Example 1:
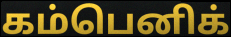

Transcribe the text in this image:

கம்பெனிக்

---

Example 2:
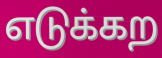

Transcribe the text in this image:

எடுக்கற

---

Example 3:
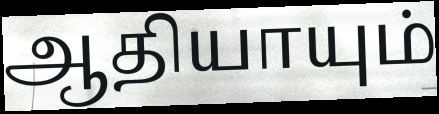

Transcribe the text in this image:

ஆதியாயும்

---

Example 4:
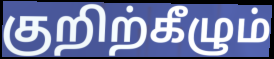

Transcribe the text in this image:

குறிற்கீழும்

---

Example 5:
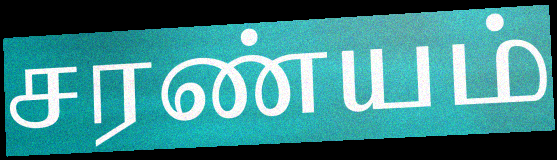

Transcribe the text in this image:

சரண்யம்